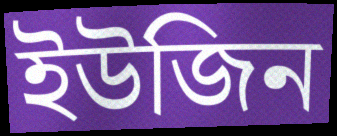
ইউজিন